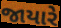
જાયારે